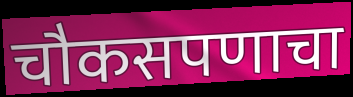
चौकसपणाचा